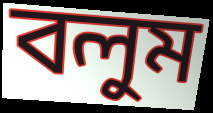
বলুম